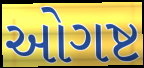
ઓગષ્ટ